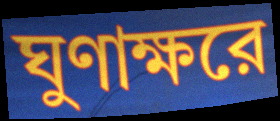
ঘুণাক্ষরে